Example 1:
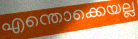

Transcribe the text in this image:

എന്തൊക്കെയല്ല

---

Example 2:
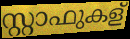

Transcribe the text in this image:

സ്റ്റാഫുകള്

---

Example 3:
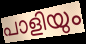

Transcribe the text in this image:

പാളിയും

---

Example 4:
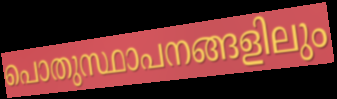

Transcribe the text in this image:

പൊതുസ്ഥാപനങ്ങളിലും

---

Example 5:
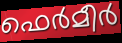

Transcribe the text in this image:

ഫെർമീർ